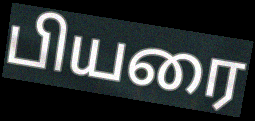
பியரை